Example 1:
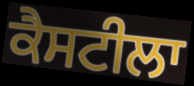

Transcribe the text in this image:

ਕੈਸਟੀਲਾ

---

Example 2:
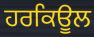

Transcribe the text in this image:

ਹਰਕਿਊਲ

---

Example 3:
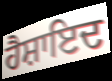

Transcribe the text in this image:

ਹੈਸ਼ਾਇਦ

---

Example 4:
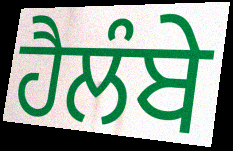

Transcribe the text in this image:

ਹੈਲੰਬੇ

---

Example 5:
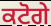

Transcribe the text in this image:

ਕਟੋਗੇ